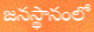
జనస్థానంలో